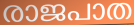
രാജപാത